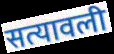
सत्यावली